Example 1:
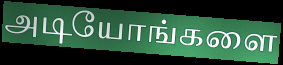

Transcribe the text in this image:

அடியோங்களை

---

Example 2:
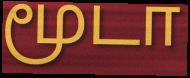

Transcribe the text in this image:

மூடா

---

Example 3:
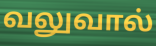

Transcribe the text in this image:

வலுவால்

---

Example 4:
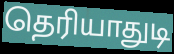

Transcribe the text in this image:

தெரியாதுடி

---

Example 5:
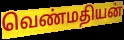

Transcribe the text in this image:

வெண்மதியன்